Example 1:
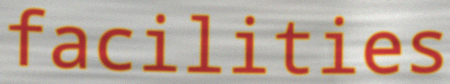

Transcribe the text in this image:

facilities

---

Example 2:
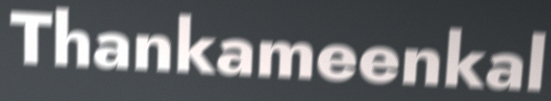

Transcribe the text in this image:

Thankameenkal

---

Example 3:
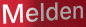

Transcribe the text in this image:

Melden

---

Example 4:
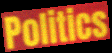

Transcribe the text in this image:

Politics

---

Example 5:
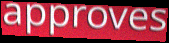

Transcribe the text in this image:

approves